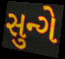
સુન્ગે